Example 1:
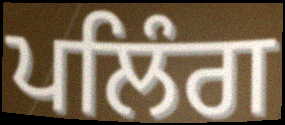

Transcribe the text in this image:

ਪਲਿੰਗ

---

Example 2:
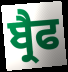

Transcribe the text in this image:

ਬ੍ਰੈਫ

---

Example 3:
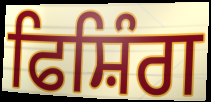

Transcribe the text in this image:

ਫਿਸ਼ਿੰਗ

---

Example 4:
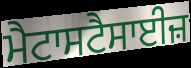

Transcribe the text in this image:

ਮੈਟਾਸਟੈਸਾਈਜ਼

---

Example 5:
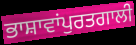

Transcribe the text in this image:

ਭਾਸ਼ਾਵਾਂਪੁਰਤਗਾਲੀ